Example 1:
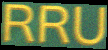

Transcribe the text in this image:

RRU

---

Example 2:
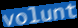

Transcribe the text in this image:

volunt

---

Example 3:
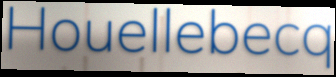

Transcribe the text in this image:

Houellebecq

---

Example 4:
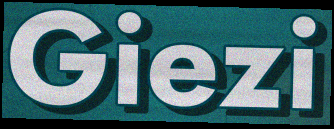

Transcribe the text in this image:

Giezi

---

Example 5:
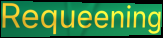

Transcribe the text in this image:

Requeening